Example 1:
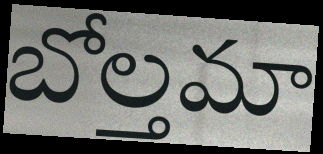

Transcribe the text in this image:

బోల్తమా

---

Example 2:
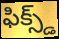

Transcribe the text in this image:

ఫిక్స్డ్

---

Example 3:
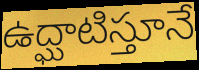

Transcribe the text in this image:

ఉద్ఘాటిస్తూనే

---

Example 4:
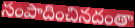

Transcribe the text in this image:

సంపాదించినదంతా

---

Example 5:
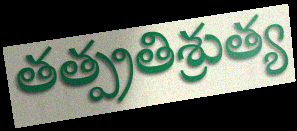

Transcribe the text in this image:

తత్ప్రతిశ్రుత్య